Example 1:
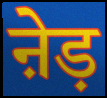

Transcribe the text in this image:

ऩेड़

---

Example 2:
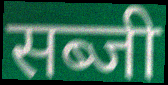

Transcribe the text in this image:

सब्जी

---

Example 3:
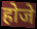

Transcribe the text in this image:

होजे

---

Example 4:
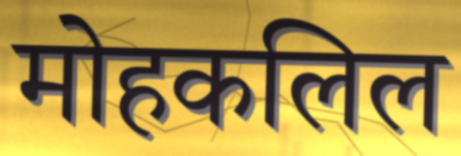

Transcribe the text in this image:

मोहकलिल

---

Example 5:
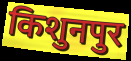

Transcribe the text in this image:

किशुनपुर